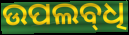
ଉପଲବ୍‌ଧି